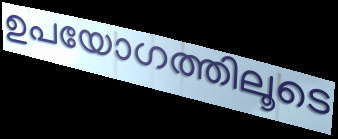
ഉപയോഗത്തിലൂടെ